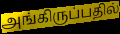
அங்கிருப்பதில்